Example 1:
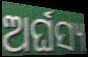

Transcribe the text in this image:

ଅର୍ଘସ୍ୟ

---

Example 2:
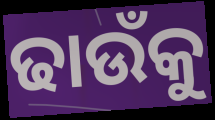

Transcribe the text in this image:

ଢାଉଁକୁ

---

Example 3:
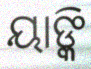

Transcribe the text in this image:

ୟାଙ୍କି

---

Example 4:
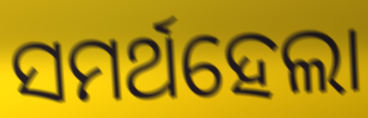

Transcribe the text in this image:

ସମର୍ଥହେଲା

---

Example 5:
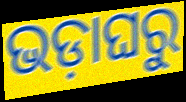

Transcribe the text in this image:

ଭଡ଼ାଘରୁ